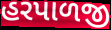
હરપાળજી